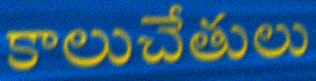
కాలుచేతులు